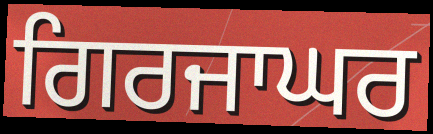
ਗਿਰਜਾਘਰ